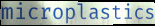
microplastics